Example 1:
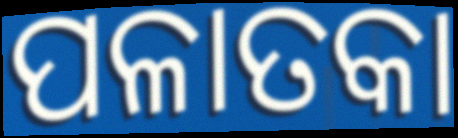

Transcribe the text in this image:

ପଳାତକା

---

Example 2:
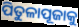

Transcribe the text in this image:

ପିତୁଳାପୂଜାକୁ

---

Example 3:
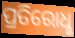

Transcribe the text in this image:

ପ୍ରତିରୋଧୢ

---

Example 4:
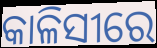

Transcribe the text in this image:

କାଳିସୀରେ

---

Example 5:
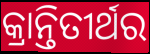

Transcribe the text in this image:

କ୍ରାନ୍ତିତୀର୍ଥର